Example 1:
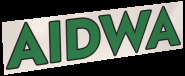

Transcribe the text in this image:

AIDWA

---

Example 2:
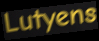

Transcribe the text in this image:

Lutyens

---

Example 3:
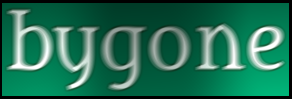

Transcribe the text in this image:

bygone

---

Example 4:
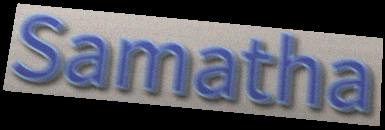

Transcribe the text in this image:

Samatha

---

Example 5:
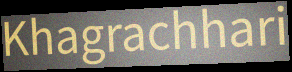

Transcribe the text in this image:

Khagrachhari